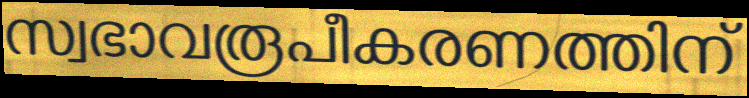
സ്വഭാവരൂപീകരണത്തിന്